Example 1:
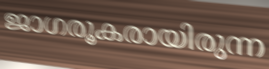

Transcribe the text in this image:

ജാഗരൂകരായിരുന്ന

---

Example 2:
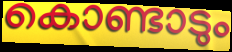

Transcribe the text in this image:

കൊണ്ടാടും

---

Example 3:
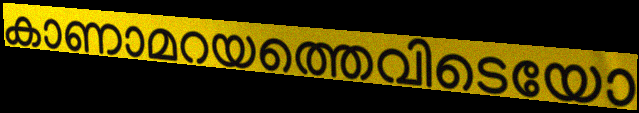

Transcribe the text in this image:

കാണാമറയത്തെവിടെയോ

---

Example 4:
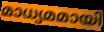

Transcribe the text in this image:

മാധ്യമമായി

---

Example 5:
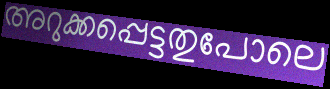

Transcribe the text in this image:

അറുക്കപ്പെട്ടതുപോലെ